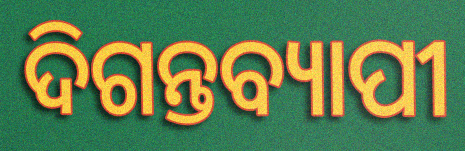
ଦିଗନ୍ତବ୍ୟାପୀ